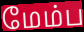
மேம்ப